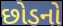
છોડનો